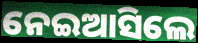
ନେଇଆସିଲେ